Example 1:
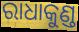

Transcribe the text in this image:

ରାଧାକୁଣ୍ଡ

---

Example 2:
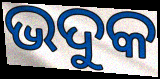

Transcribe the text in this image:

ଭଦୁକ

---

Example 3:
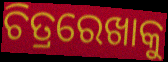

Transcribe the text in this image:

ଚିତ୍ରରେଖାକୁ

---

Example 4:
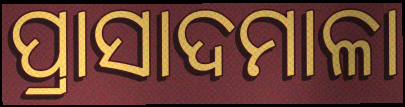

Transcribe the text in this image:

ପ୍ରାସାଦମାଳା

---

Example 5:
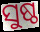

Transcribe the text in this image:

ସୁଷ୍ଠ